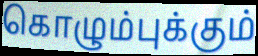
கொழும்புக்கும்